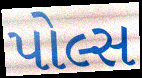
પોલ્સ